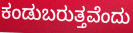
ಕಂಡುಬರುತ್ತವೆಂದು